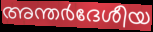
അന്തർദേശീയ